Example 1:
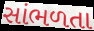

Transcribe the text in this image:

સાંભળતા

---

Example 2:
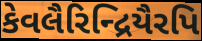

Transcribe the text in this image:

કેવલૈરિન્દ્રિયૈરપિ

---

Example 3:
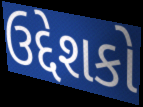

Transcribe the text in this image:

ઉદ્દેશકો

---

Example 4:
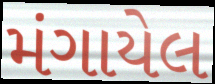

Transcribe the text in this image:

મંગાયેલ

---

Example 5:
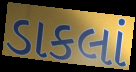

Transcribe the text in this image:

ડાકલાં